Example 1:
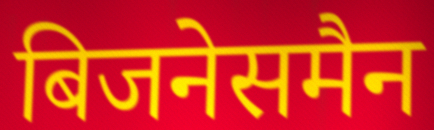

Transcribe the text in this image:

बिजनेसमैन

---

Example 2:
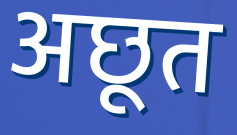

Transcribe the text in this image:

अछूत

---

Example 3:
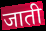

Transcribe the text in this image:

जाती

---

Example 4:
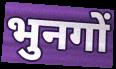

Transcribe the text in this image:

भुनगों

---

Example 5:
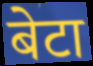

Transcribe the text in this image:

बेटा